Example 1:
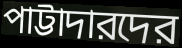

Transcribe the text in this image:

পাট্টাদারদের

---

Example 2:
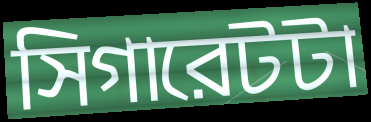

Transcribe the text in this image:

সিগারেটটা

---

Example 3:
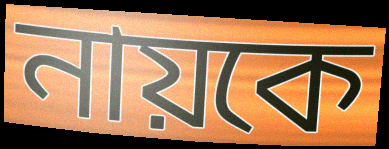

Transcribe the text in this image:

নায়কে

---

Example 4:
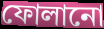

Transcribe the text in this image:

ফোলানো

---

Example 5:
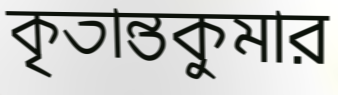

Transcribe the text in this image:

কৃতান্তকুমার